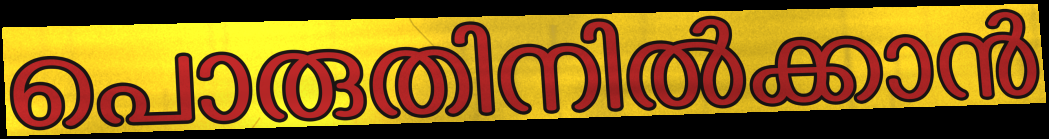
പൊരുതിനിൽക്കാൻ